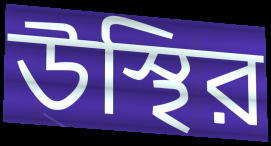
উস্থির